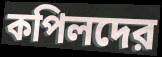
কপিলদের